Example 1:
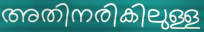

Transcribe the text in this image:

അതിനരികിലുള്ള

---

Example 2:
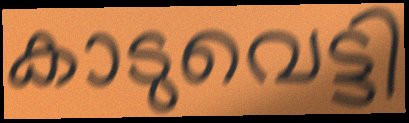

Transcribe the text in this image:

കാടുവെട്ടി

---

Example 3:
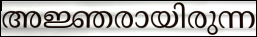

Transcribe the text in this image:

അജ്ഞരായിരുന്ന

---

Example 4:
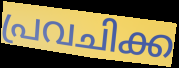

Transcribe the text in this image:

പ്രവചിക്ക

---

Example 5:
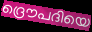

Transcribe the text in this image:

ദ്രൌപദിയെ